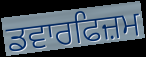
ਡਵਾਰਫਿਜ਼ਮ